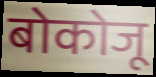
बोकोजू